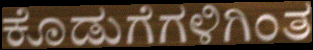
ಕೊಡುಗೆಗಳಿಗಿಂತ